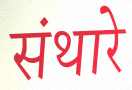
संथारे